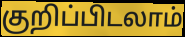
குறிப்பிடலாம்